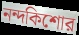
নন্দকিশোর